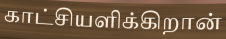
காட்சியளிக்கிறான்